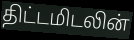
திட்டமிடலின்